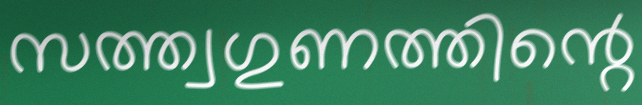
സത്ത്വഗുണത്തിന്റെ